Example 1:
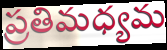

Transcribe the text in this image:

ప్రతిమధ్యమ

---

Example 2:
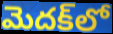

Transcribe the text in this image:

మెదక్‌లో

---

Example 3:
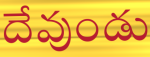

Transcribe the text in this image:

దేవుండు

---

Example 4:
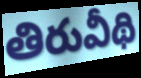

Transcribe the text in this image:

తిరువీథి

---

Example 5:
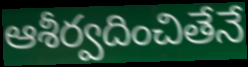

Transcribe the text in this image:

ఆశీర్వదించితేనే